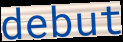
debut